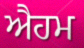
ਐਹਮ